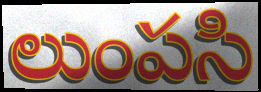
లుంపసి